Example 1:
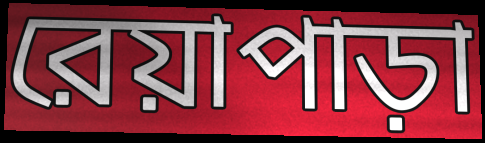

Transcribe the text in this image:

রেয়াপাড়া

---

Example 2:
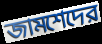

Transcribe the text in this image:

জামশেদের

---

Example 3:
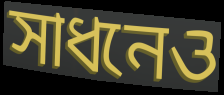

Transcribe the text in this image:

সাধনেও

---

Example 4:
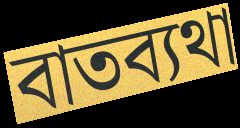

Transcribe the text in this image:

বাতব্যথা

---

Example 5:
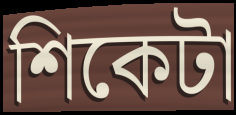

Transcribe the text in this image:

শিকেটা